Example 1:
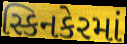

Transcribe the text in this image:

સ્કિનકેરમાં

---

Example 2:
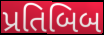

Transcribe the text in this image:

પ્રતિબિબ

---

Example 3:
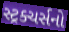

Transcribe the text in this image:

સ્ટ્રક્ચર્સનો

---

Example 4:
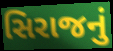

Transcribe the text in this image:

સિરાજનું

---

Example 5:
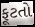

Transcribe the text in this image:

ફૂટતો